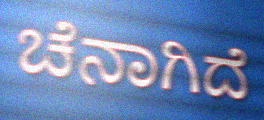
ಚೆನಾಗಿದೆ